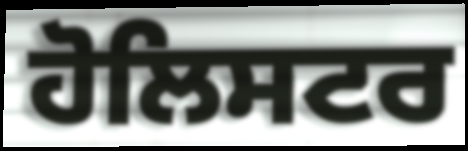
ਹੋਲਿਸਟਰ